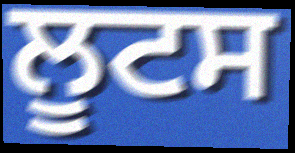
ਲੂਟਸ